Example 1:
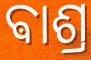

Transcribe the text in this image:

ଵାଶ୍ର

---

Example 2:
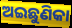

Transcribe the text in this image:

ଅଇଛୁଣିକା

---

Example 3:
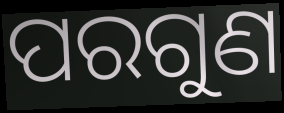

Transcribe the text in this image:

ପରଗୁଣ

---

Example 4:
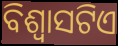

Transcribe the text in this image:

ବିଶ୍ଵାସଟିଏ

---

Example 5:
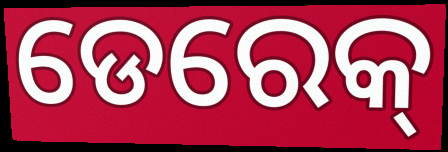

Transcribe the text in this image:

ଡେରେକ୍